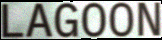
LAGOON